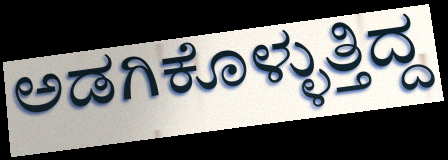
ಅಡಗಿಕೊಳ್ಳುತ್ತಿದ್ದ